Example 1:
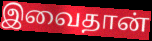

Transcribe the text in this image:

இவைதான்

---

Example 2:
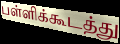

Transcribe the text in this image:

பள்ளிக்கூடத்து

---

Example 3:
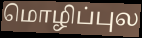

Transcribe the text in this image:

மொழிப்புல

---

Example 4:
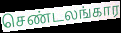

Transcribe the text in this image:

செண்டலங்கார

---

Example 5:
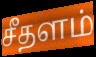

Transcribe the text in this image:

சீதளம்